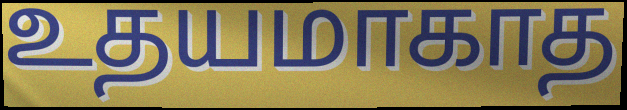
உதயமாகாத